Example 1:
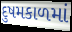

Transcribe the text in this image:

દુષમકાળમાં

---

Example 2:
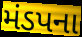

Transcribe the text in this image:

મંડપના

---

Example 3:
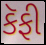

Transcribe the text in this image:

કૅફી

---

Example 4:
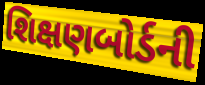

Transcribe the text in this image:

શિક્ષણબોર્ડની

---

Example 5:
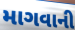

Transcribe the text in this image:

માગવાની